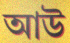
আউ